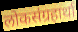
लोकसंग्रहार्था